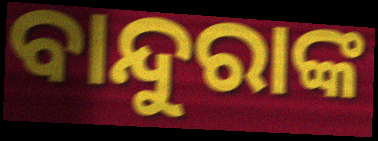
ବାନ୍ଦୁରାଙ୍କ